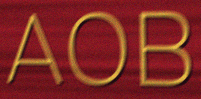
AOB